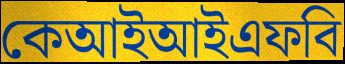
কেআইআইএফবি